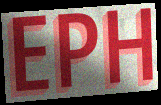
EPH